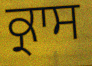
ਕ੍ਰਾਸ